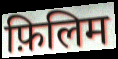
फ़िलिम